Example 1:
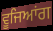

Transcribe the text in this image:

ਵੂਜਿਆਂਗ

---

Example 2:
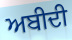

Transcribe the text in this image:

ਅਬੀਦੀ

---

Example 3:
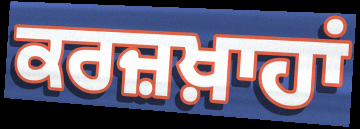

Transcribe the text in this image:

ਕਰਜ਼ਖ਼ਾਹਾਂ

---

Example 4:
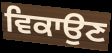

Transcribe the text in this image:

ਵਿਕਾਉਣ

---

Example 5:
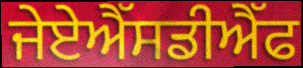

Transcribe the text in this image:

ਜੇਏਐੱਸਡੀਐੱਫ